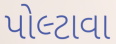
પોલ્ટાવા